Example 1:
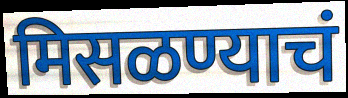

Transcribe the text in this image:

मिसळण्याचं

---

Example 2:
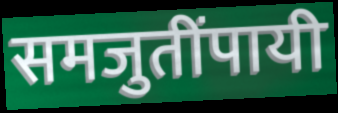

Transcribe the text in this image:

समजुतींपायी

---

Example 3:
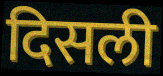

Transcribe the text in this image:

दिसली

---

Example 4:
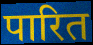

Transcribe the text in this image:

पारित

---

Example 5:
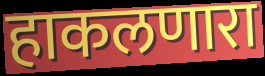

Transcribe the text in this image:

हाकलणारा